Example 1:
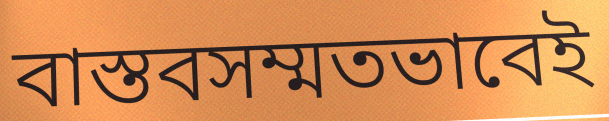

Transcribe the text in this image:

বাস্তবসম্মতভাবেই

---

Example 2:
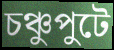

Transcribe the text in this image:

চঞ্চুপুটে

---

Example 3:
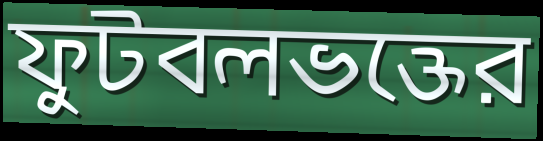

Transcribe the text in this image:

ফুটবলভক্তের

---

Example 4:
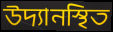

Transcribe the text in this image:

উদ্যানস্থিত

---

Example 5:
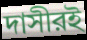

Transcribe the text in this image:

দাসীরই